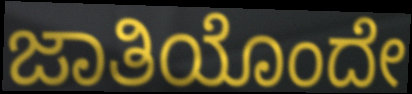
ಜಾತಿಯೊಂದೇ